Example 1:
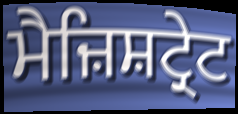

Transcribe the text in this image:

ਮੈਜ਼ਿਸ਼ਟ੍ਰੇਟ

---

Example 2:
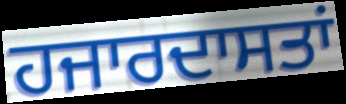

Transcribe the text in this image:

ਹਜਾਰਦਾਸਤਾਂ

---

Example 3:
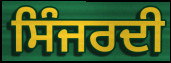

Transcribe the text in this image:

ਸਿੰਜਰਦੀ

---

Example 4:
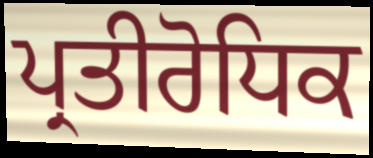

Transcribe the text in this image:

ਪ੍ਰਤੀਰੋਧਿਕ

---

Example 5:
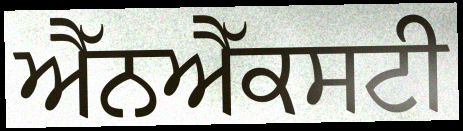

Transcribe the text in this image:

ਐੱਨਐੱਕਸਟੀ